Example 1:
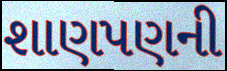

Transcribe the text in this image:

શાણપણની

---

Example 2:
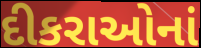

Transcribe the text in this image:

દીકરાઓનાં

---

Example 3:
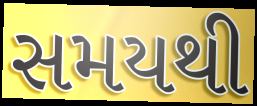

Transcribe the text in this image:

સમયથી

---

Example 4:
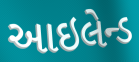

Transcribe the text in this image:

આઇલેન્ડ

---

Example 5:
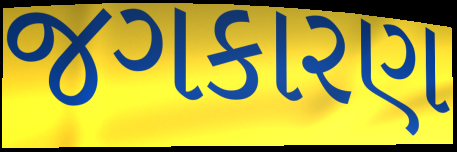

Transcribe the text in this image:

જગકારણ